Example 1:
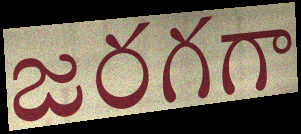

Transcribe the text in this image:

జరగగా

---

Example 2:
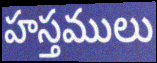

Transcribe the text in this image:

హస్తములు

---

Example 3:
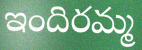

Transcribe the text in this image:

ఇందిరమ్మ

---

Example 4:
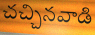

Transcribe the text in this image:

చచ్చినవాడి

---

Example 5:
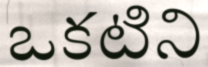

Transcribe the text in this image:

ఒకటిని